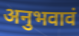
अनुभवावं